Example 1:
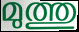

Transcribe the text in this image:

മുത്തു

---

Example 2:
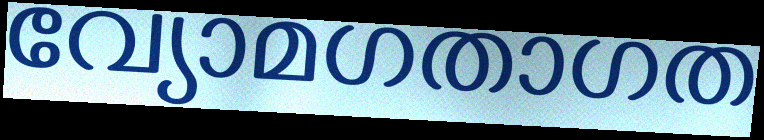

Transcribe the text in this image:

വ്യോമഗതാഗത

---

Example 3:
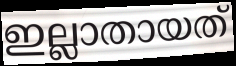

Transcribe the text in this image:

ഇല്ലാതായത്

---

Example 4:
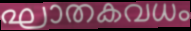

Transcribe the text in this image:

ഘാതകവധം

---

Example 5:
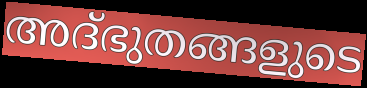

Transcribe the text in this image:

അദ്ഭുതങ്ങളുടെ